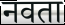
नवता